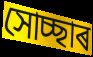
সোচ্ছাৰ